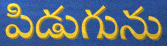
పిడుగును